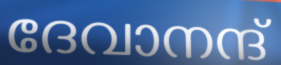
ദേവാനന്ദ്